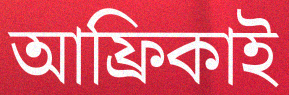
আফ্রিকাই